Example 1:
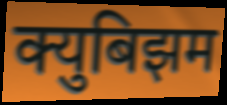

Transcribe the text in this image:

क्युबिझम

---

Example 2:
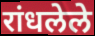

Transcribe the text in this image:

रांधलेले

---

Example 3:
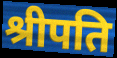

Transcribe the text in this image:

श्रीपति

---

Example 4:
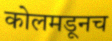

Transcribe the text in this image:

कोलमडूनच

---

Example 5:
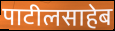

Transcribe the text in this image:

पाटीलसाहेब